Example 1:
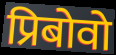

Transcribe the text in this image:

प्रिबोवो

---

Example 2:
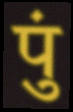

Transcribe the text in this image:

पुं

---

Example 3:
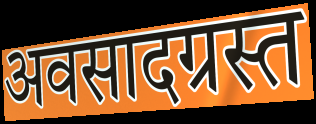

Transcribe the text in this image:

अवसादग्रस्त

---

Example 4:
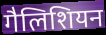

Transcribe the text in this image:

गैलिशियन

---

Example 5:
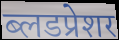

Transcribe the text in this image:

ब्लडप्रेशर